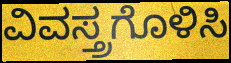
ವಿವಸ್ತ್ರಗೊಳಿಸಿ